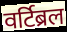
वर्टिब्रल